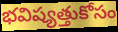
భవిష్యత్తుకోసం